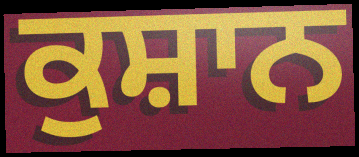
ਕੁਸ਼ਾਨ